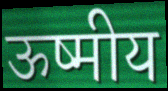
ऊष्मीय